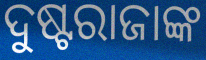
ଦୁଷ୍ଟରାଜାଙ୍କ